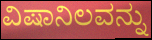
ವಿಷಾನಿಲವನ್ನು